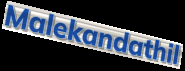
Malekandathil